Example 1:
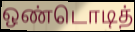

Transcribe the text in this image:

ஒண்டொடித்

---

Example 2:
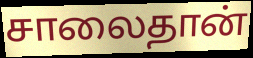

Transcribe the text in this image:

சாலைதான்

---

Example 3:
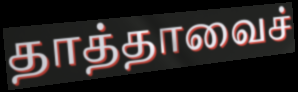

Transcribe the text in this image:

தாத்தாவைச்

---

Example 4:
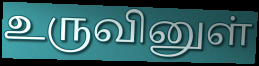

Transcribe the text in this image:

உருவினுள்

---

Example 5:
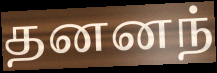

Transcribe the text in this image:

தனனந்